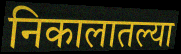
निकालातल्या